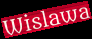
Wislawa